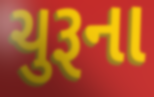
ચુરૂના